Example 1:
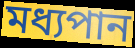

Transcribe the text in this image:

মধ্যপান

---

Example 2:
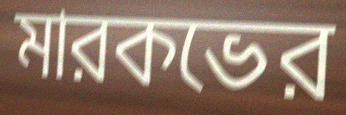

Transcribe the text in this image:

মারকভের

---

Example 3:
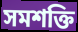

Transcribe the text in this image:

সমশক্তি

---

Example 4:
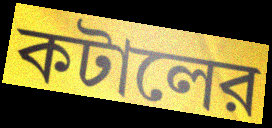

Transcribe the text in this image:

কটালের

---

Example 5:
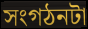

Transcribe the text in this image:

সংগঠনটা